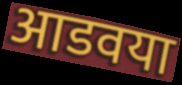
आडवया